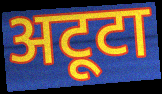
अटूटा